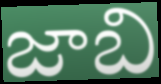
జాబి